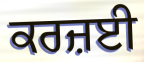
ਕਰਜ਼ਈ